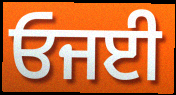
ਓਜਈ